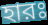
হারঃ